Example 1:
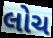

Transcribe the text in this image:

લોચ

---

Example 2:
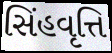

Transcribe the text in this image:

સિંહવૃત્તિ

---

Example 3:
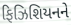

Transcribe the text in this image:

ફિઝિશિયનને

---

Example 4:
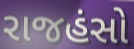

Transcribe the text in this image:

રાજહંસો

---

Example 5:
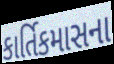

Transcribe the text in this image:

કાર્તિકમાસના